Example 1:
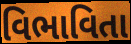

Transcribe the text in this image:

વિભાવિતા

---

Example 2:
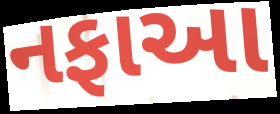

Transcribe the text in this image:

નફાઆ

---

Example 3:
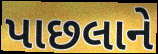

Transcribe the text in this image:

પાછલાને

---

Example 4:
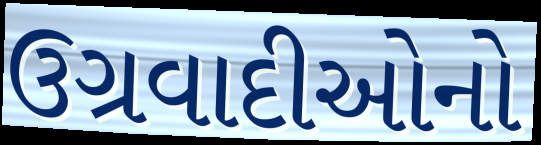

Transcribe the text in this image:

ઉગ્રવાદીઓનો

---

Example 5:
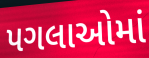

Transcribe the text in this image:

પગલાઓમાં